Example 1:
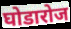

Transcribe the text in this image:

घोडारोज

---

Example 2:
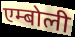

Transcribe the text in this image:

एम्बोली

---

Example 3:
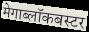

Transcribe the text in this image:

मेगाब्लॉकबस्टर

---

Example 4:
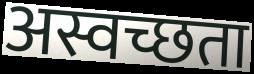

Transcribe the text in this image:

अस्वच्छता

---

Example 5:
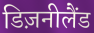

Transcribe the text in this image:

डिज़नीलैंड